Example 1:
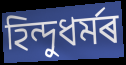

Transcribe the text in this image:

হিন্দুধৰ্মৰ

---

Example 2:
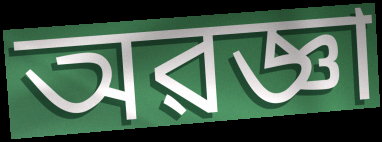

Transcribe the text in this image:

অৱজ্ঞা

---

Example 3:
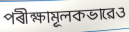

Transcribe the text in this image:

পৰীক্ষামূলকভাৱেও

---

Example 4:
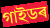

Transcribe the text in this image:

গাইডৰ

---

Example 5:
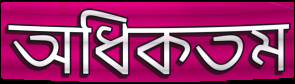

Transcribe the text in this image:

অধিকতম